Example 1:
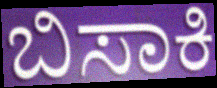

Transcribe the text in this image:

ಬಿಸಾಕಿ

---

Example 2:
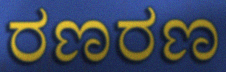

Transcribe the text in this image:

ರಣರಣ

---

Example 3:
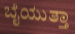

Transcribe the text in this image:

ಬೈಯುತ್ತಾ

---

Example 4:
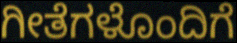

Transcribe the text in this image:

ಗೀತೆಗಳೊಂದಿಗೆ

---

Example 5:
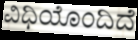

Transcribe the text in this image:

ವಿಧಿಯೊಂದಿದೆ